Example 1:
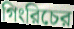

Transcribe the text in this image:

গিংরিচের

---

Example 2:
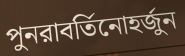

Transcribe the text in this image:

পুনরাবর্তিনোহর্জুন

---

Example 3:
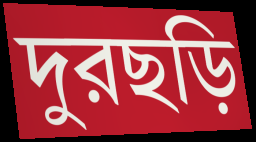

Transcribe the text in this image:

দুরছড়ি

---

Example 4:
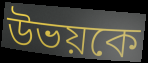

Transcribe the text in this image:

উভয়কে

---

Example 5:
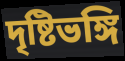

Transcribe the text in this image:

দৃষ্টিভঙ্গি